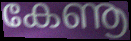
കേണൂ